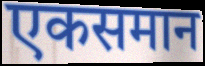
एकसमान